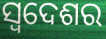
ସ୍ଵଦେଶର